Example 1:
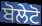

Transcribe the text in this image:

ਬੋਲੇਟੋ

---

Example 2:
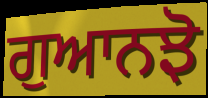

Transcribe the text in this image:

ਗੁਆਨਝੋ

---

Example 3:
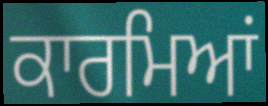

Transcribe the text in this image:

ਕਾਰਮਿਆਂ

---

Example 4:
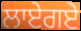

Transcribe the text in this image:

ਲਾਏਗਏ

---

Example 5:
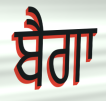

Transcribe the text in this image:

ਬੈਗਾ